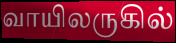
வாயிலருகில்